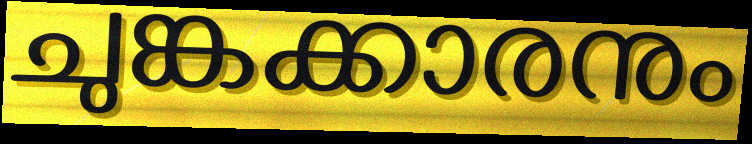
ചുങ്കക്കാരനും